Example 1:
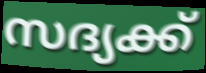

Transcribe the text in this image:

സദ്യക്ക്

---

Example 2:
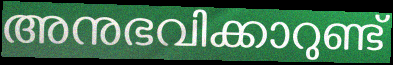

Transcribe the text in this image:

അനുഭവിക്കാറുണ്ട്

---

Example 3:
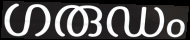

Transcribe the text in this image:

ഗരുഡം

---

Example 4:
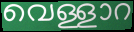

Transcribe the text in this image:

വെള്ളാറ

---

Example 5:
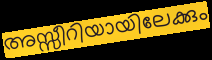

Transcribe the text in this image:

അസ്സീറിയായിലേക്കും